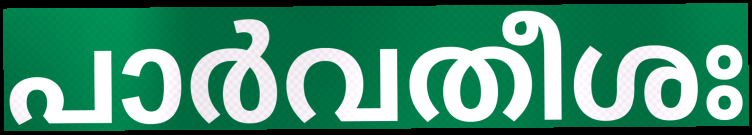
പാർവതീശഃ